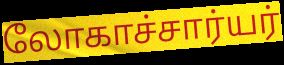
லோகாச்சார்யர்